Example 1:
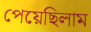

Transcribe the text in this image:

পেয়েছিলাম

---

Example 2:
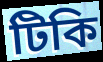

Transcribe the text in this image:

টিকি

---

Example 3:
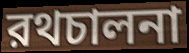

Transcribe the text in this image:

রথচালনা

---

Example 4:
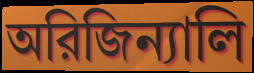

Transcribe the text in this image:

অরিজিন্যালি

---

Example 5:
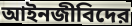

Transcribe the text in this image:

আইনজীবিদের